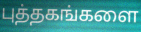
புத்தகங்களை